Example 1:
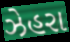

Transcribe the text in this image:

ઝેહરા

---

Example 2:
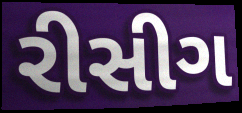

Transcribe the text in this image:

રીસીગ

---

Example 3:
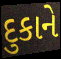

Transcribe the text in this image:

દુકાને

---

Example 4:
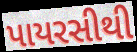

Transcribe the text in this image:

પાયરસીથી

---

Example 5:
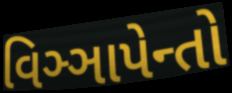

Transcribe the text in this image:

વિઞ્ઞાપેન્તો